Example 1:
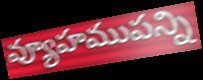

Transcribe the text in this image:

వ్యూహముపన్ని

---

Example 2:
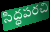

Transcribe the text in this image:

సిద్ధపరచి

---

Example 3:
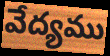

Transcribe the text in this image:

వేద్యము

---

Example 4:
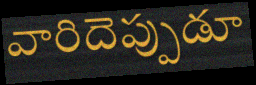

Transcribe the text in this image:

వారిదెప్పుడూ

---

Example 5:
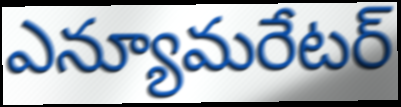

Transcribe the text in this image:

ఎన్యూమరేటర్